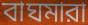
বাঘমারা